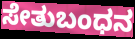
ಸೇತುಬಂಧನ